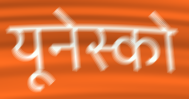
यूनेस्को